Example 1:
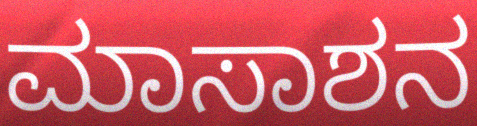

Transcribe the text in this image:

ಮಾಸಾಶನ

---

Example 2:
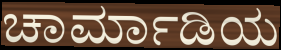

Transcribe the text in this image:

ಚಾರ್ಮಾಡಿಯ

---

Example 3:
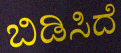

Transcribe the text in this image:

ಬಿಡಿಸಿದೆ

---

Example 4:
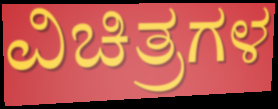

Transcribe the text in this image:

ವಿಚಿತ್ರಗಳ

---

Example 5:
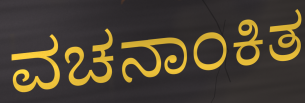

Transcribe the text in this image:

ವಚನಾಂಕಿತ